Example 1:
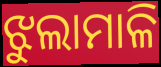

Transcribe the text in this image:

ଝୁଲାମାଳି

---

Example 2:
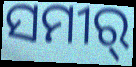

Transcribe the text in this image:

ସମୀର୍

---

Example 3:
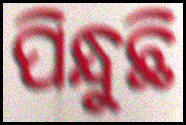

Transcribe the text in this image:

ପିନ୍ଧୁଛି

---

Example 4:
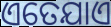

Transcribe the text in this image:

ଏତେଯାଏ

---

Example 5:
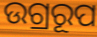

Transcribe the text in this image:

ଉଗ୍ରରୂପ